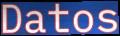
Datos